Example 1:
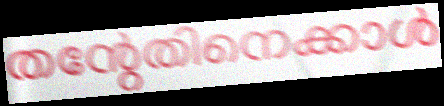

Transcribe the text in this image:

തന്റേതിനെക്കാൾ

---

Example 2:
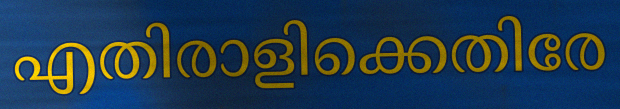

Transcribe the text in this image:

എതിരാളിക്കെതിരേ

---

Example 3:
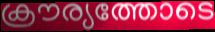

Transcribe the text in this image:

ക്രൗര്യത്തോടെ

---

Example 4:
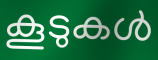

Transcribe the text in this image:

കൂടുകൾ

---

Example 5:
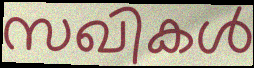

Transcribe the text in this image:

സഖികൾ